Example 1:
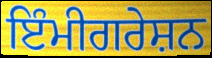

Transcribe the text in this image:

ਇੰਮੀਗਰੇਸ਼ਨ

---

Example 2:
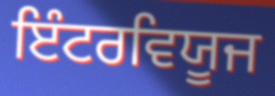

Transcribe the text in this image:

ਇੰਟਰਵਿਯੂਜ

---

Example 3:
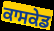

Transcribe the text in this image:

ਕਾਸਕੇਡ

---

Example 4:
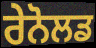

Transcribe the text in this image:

ਰੇਨੋਲਡ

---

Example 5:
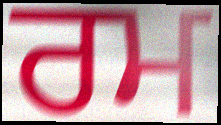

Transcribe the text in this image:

ਰਮ